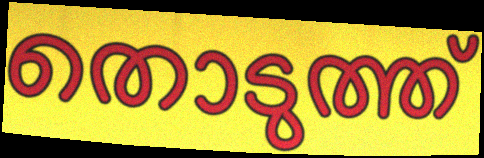
തൊടുത്ത്